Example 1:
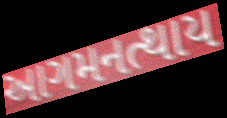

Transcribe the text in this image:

આગમનત્થાય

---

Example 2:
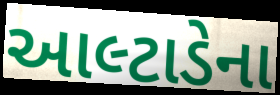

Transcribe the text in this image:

આલ્ટાડેના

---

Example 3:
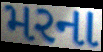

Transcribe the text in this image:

મરના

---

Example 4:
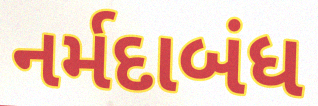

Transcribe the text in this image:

નર્મદાબંધ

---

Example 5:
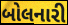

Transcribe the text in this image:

બોલનારી